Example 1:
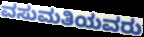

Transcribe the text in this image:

ವಸುಮತಿಯವರು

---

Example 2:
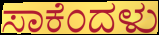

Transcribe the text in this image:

ಸಾಕೆಂದಳು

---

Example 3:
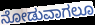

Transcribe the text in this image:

ನೋಡುವಾಗಲೂ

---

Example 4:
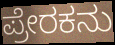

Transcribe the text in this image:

ಪ್ರೇರಕನು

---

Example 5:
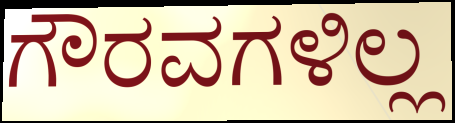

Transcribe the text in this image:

ಗೌರವಗಳಿಲ್ಲ